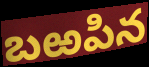
బఱపిన